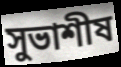
সুভাশীষ